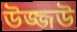
উজ্জউ